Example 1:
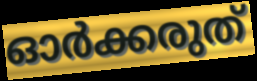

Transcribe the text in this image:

ഓർക്കരുത്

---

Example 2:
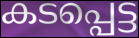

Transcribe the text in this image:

കടപ്പെട്ട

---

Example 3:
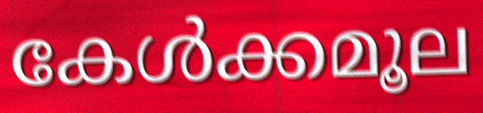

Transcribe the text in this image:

കേൾക്കമൂല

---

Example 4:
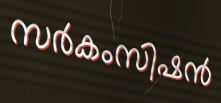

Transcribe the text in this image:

സർകംസിഷൻ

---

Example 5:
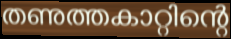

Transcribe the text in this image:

തണുത്തകാറ്റിന്റെ